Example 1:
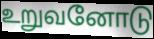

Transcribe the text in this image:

உறுவனோடு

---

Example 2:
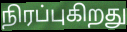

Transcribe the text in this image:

நிரப்புகிறது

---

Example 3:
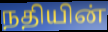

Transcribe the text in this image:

நதியின்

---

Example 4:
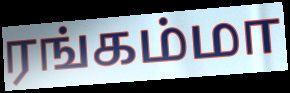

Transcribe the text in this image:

ரங்கம்மா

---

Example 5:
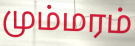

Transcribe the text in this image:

மும்மரம்